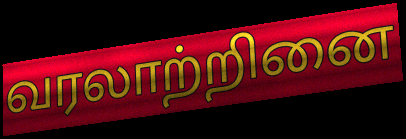
வரலாற்றினை